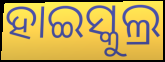
ହାଇସ୍କୁଲ୍ର